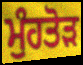
ਮੁੰਹਤੋੜ